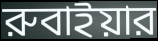
রুবাইয়ার